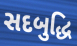
સદબુદ્ધિ